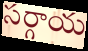
సర్గాయ